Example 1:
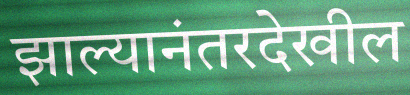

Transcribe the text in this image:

झाल्यानंतरदेखील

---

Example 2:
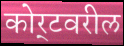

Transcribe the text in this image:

कोर्टवरील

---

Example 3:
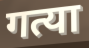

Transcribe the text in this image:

गत्या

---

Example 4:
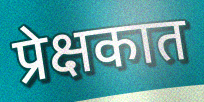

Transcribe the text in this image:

प्रेक्षकात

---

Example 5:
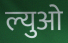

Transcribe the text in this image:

ल्युओ